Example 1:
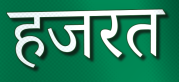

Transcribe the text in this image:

हजरत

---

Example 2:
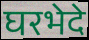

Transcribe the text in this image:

घरभेदे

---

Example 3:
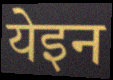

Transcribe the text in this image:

येइन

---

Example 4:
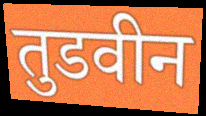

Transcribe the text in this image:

तुडवीन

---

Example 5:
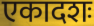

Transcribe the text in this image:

एकादशः